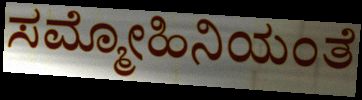
ಸಮ್ಮೋಹಿನಿಯಂತೆ